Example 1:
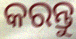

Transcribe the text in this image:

କରନ୍ତୁ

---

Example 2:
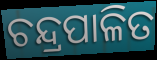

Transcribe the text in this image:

ଚନ୍ଦ୍ରପାଳିତ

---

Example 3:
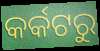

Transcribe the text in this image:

କର୍କଟରୁ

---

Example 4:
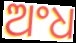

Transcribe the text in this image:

ଅଂଧ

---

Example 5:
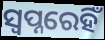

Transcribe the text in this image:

ସ୍ୱପ୍ନରେହିଁ